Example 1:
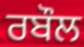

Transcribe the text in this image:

ਰਬੌਲ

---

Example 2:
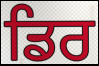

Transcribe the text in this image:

ਡਿਰ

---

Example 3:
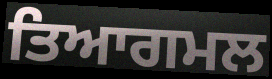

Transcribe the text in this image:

ਤਿਆਗਮਲ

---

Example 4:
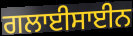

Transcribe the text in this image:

ਗਲਾਈਸਾਈਨ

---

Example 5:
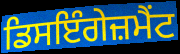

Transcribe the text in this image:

ਡਿਸਇੰਗੇਜ਼ਮੈਂਟ